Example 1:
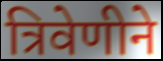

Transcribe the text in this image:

त्रिवेणीने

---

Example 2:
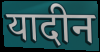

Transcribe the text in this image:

यादीन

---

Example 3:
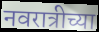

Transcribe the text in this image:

नवरात्रीच्या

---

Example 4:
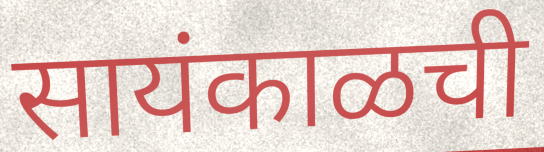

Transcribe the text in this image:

सायंकाळची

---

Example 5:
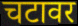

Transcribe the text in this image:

चटावर